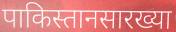
पाकिस्तानसारख्या